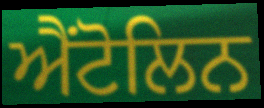
ਐਂਟੋਲਿਨ